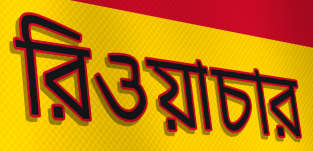
রিওয়াচার